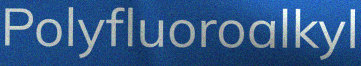
Polyfluoroalkyl